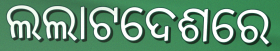
ଲଲାଟଦେଶରେ